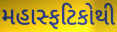
મહાસ્ફટિકોથી